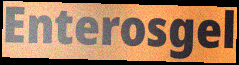
Enterosgel